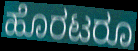
ಹೊರಟರೂ